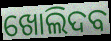
ଖୋଲିଦବ